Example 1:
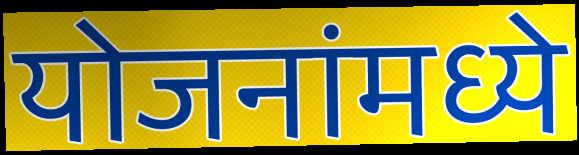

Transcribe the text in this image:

योजनांमध्ये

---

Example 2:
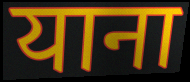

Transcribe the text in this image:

याना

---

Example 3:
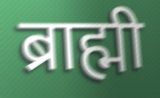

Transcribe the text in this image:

ब्राह्मी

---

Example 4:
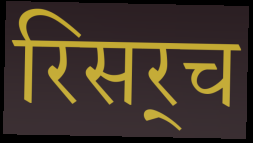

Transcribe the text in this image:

रिसर्च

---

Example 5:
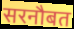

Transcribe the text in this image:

सरनौबत